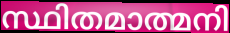
സ്ഥിതമാത്മനി